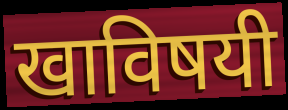
खाविषयी